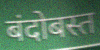
बंदोबस्त